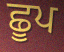
ਛੂਪ